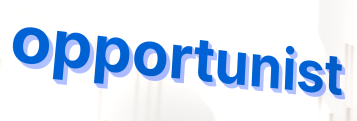
opportunist